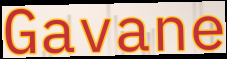
Gavane